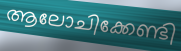
ആലോചിക്കേണ്ടി